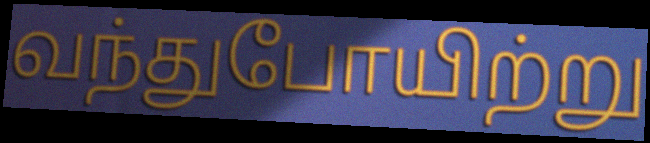
வந்துபோயிற்று